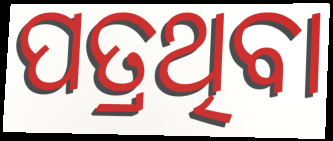
ପତ୍ରଥିବା